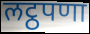
लट्ठपणा